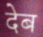
देब